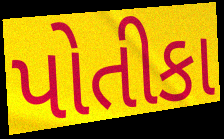
પોતીકા